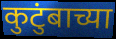
कुटुंबाच्या